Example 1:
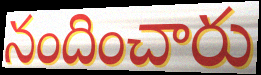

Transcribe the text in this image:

నందించారు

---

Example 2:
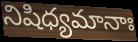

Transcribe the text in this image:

నిషిధ్యమానాః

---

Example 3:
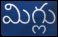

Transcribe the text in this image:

మిగ్లు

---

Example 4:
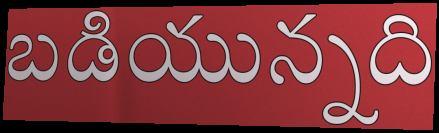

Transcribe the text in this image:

బడియున్నది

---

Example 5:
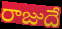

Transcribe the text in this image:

రాజుదే